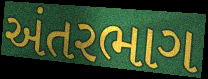
અંતરભાગ